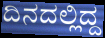
ದಿನದಲ್ಲಿದ್ದ